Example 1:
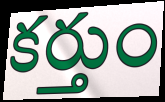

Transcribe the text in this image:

కర్తుం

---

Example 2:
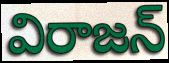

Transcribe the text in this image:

విరాజన్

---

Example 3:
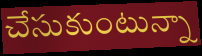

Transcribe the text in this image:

చేసుకుంటున్నా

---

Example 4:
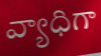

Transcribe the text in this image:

వ్యాధిగా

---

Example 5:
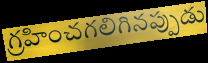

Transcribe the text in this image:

గ్రహించగలిగినప్పుడు